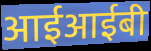
आईआईबी